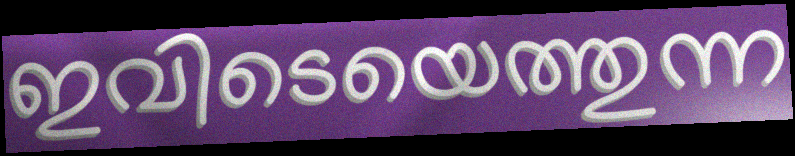
ഇവിടെയെത്തുന്ന